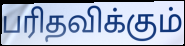
பரிதவிக்கும்